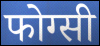
फोग्सी